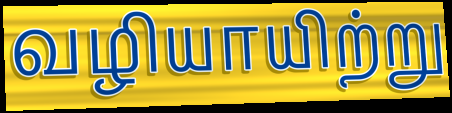
வழியாயிற்று